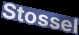
Stossel